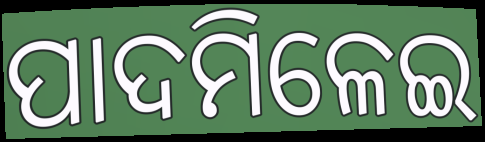
ପାଦମିଳେଇ